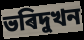
ভৰিদুখন